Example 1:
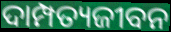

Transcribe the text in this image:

ଦାମ୍ପତ୍ୟଜୀବନ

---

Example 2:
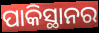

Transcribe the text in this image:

ପାକିସ୍ଥାନର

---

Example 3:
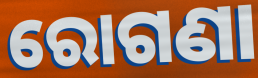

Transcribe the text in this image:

ରୋଗଣା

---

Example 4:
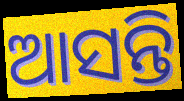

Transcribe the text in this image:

ଆସନ୍ତି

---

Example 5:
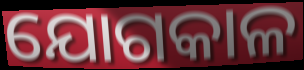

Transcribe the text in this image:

ଯୋଗକାଳ